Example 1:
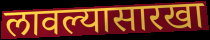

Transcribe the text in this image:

लावल्यासारखा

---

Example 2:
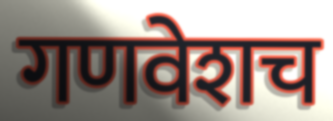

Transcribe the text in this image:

गणवेशच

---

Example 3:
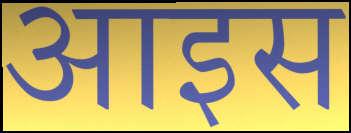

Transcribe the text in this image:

आइस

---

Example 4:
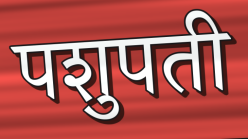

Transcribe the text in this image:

पशुपती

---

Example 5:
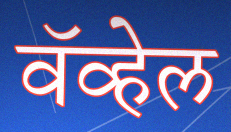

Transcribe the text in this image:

वॅव्हेल